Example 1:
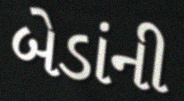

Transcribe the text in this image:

બેડાંની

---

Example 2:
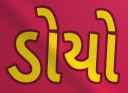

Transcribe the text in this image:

ડોયો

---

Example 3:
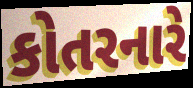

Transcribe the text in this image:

કોતરનારે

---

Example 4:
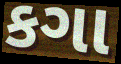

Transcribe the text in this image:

કગા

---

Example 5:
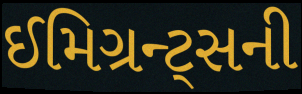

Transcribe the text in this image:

ઈમિગ્રન્ટ્સની